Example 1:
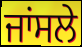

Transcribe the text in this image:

ਜਾਂਸਲੇ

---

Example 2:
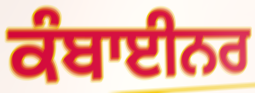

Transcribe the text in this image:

ਕੰਬਾਈਨਰ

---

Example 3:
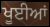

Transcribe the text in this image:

ਖੂਈਆਂ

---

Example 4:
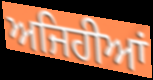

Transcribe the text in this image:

ਅਜਿਹੀਆਂ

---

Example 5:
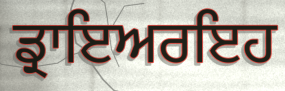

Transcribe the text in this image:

ਡ੍ਰਾਇਅਰਇਹ